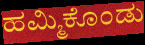
ಹಮ್ಮಿಕೊಂಡು